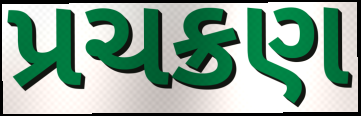
પ્રચક્રણ